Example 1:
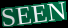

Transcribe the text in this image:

SEEN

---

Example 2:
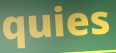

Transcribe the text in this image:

quies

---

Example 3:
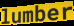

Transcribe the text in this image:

lumber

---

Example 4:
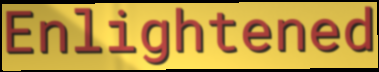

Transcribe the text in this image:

Enlightened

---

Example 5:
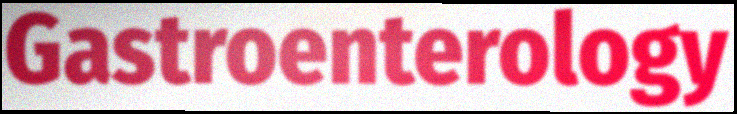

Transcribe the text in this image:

Gastroenterology